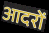
आदरों